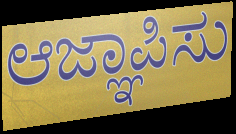
ಆಜ್ಞಾಪಿಸು